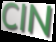
CIN